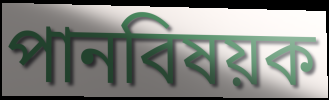
পানবিষয়ক